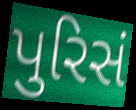
પુરિસં